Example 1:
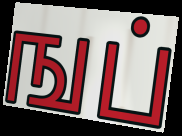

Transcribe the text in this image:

ஙப்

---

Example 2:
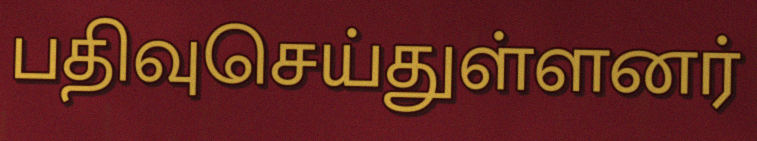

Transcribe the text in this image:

பதிவுசெய்துள்ளனர்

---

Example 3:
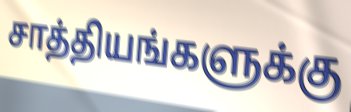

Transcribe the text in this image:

சாத்தியங்களுக்கு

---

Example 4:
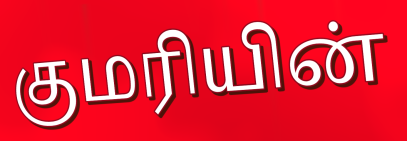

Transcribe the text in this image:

குமரியின்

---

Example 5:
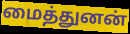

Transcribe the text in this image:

மைத்துனன்